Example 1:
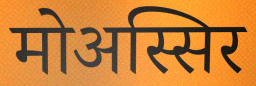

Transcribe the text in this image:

मोअस्सिर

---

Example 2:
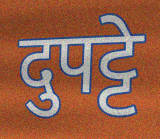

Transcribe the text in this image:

दुपट्टे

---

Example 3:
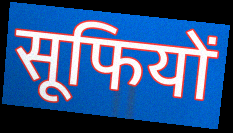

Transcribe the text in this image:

सूफियों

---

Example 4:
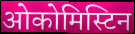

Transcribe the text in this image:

ओकोमिस्टिन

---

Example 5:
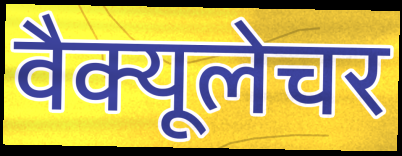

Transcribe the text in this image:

वैक्यूलेचर